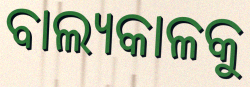
ବାଲ୍ୟକାଳକୁ